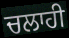
ਚਲਾਹੀ